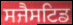
ਸਜੈਸਟਿਡ